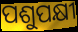
ପଶୁପକ୍ଷୀ